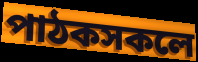
পাঠকসকলে